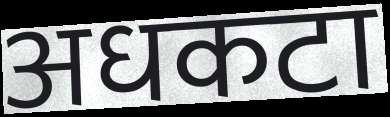
अधकटा